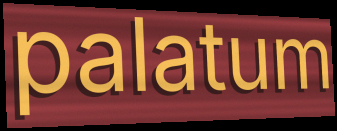
palatum